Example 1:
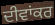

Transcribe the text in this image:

ਦੀਵਾਂਕਰ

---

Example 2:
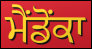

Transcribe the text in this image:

ਮੈਂਡੋਂਕਾ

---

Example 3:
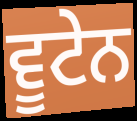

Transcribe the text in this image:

ਵੂਟੇਨ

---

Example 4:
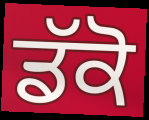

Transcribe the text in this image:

ਡੱਕੋ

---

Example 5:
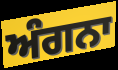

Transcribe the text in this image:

ਅੰਗਨਾ